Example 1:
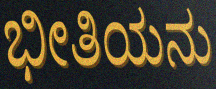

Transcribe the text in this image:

ಭೀತಿಯನು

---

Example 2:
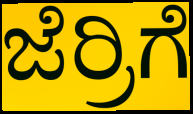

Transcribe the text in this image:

ಜೆರ್ರಿಗೆ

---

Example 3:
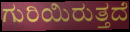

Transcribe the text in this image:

ಗುರಿಯಿರುತ್ತದೆ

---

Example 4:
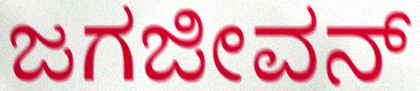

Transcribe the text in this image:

ಜಗಜೀವನ್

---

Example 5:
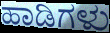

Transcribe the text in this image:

ಹಾಡಿಗಳು